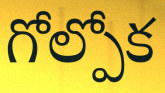
గోల్పోక